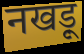
नखड़ू